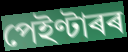
পেইণ্টাৰৰ